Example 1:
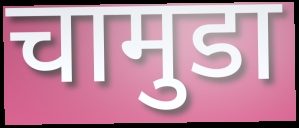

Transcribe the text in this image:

चामुडा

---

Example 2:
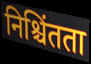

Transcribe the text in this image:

निश्चिंतता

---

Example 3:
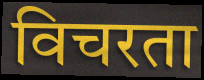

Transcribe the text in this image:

विचरता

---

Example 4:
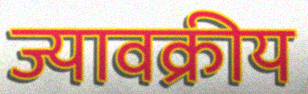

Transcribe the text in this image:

ज्यावक्रीय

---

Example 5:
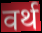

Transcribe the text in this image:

वर्थ